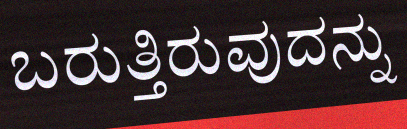
ಬರುತ್ತಿರುವುದನ್ನು